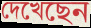
দেখেছেন